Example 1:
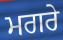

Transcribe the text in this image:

ਮਗਰੇ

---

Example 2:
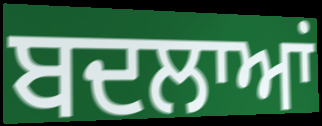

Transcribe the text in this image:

ਬਦਲਾਆਂ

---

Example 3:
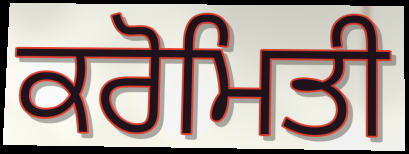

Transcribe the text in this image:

ਕਰੋਮਿਤੀ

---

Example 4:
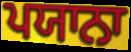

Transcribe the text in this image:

ਪਯਾਨਾ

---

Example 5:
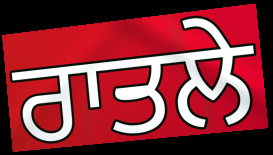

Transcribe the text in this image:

ਰਾਤਲੇ